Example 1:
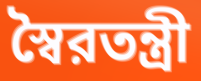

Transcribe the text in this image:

স্বৈরতন্ত্রী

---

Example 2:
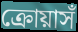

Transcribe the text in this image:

ক্রোয়াসঁ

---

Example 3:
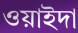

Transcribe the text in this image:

ওয়াইদা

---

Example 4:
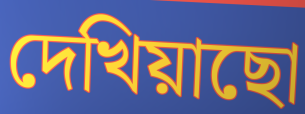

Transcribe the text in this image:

দেখিয়াছো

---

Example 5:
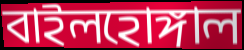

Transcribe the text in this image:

বাইলহোঙ্গাল